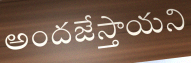
అందజేస్తాయని